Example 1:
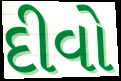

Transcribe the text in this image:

દીવો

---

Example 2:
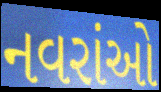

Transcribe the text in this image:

નવરાંઓ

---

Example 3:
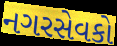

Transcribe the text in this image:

નગરસેવકો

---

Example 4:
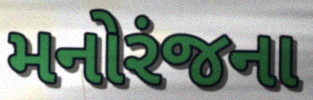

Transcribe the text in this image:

મનોરંજના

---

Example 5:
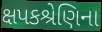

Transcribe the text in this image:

ક્ષપકશ્રેણિના